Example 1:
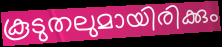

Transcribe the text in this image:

കൂടുതലുമായിരിക്കും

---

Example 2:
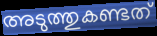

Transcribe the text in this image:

അടുത്തുകണ്ടത്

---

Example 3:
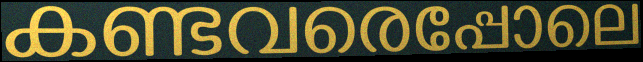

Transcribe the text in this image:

കണ്ടവരെപ്പോലെ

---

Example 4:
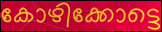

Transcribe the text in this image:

കോഴിക്കോട്ടെ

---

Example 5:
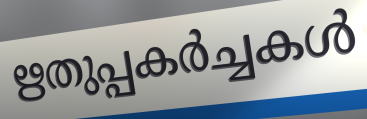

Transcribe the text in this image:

ഋതുപ്പകർച്ചകൾ